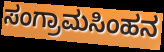
ಸಂಗ್ರಾಮಸಿಂಹನ